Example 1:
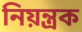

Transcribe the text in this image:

নিয়ন্ত্রক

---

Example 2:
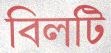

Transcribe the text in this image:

বিলটি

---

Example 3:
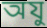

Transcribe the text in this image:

অযু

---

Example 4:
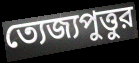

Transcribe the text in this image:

ত্যেজ্যপুত্তুর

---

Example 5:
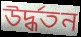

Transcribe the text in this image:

উর্দ্ধতন